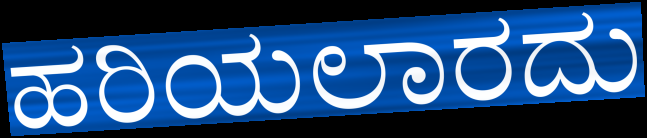
ಹರಿಯಲಾರದು